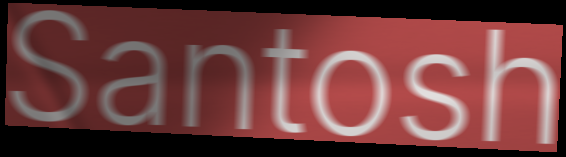
Santosh